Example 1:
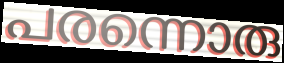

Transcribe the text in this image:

പരന്നൊരു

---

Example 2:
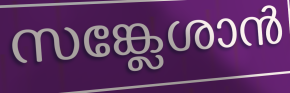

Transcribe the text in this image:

സങ്ക്ലേശാൻ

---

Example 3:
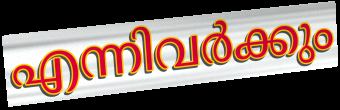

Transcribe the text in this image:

എന്നിവർക്കും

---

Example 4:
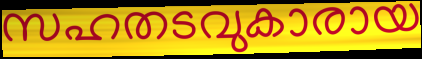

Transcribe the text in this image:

സഹതടവുകാരായ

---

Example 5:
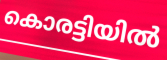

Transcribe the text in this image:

കൊരട്ടിയിൽ